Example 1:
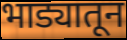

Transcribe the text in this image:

भाड्यातून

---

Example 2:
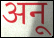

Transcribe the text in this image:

अनू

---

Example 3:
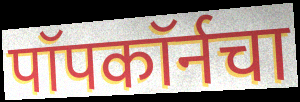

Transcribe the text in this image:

पॉपकॉर्नचा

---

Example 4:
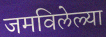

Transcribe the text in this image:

जमविलेल्या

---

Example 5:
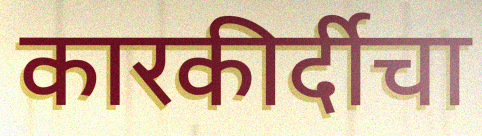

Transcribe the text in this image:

कारकीर्दीचा